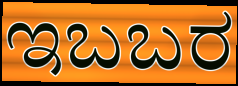
ಇಬಬರ